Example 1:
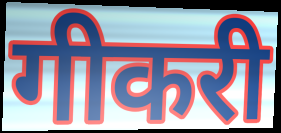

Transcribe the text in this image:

गीकरी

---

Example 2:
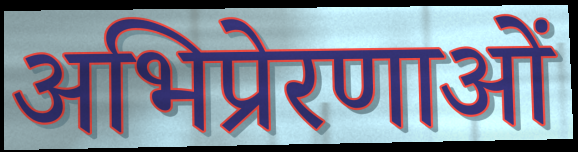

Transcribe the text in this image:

अभिप्रेरणाओं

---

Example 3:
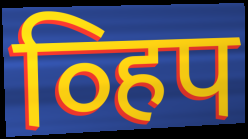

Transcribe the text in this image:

व्हिप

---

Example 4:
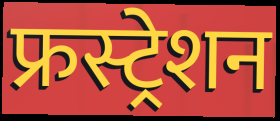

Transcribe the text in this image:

फ्रस्‍ट्रेशन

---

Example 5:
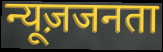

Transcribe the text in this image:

न्यूज़जनता